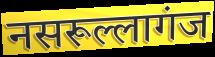
नसरूल्लागंज